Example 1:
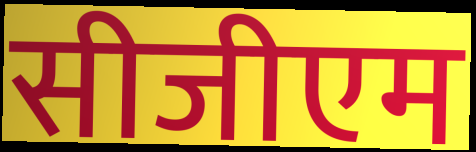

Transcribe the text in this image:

सीजीएम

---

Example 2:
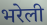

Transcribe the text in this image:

भरेली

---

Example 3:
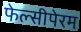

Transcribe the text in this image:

फेल्सीपेरम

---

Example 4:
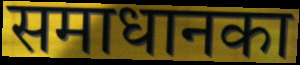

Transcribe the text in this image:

समाधानका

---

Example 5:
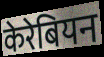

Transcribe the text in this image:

केरेबियन